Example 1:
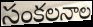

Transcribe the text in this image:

సంకలనాల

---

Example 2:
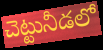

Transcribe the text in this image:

చెట్టునీడలో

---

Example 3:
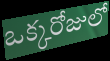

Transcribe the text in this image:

ఒక్కరోజులో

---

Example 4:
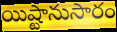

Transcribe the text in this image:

యిష్టానుసారం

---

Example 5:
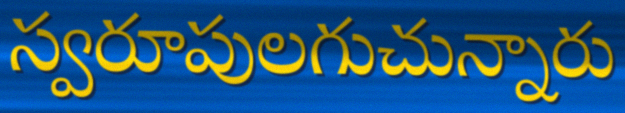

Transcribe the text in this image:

స్వరూపులగుచున్నారు